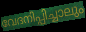
വേദനിപ്പിച്ചാലും